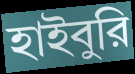
হাইবুরি